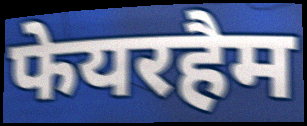
फेयरहैम